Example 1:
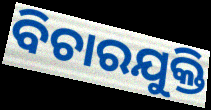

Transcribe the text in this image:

ବିଚାରଯୁକ୍ତି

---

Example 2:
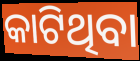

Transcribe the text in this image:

କାଟିଥିବା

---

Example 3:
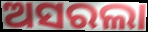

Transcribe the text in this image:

ଅସରଲା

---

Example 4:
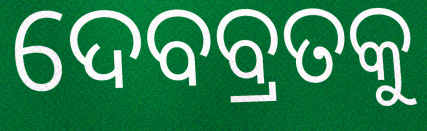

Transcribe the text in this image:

ଦେବବ୍ରତକୁ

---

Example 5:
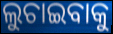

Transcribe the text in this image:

ଲୁଚାଇବାକୁ